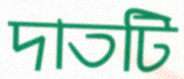
দাতটি